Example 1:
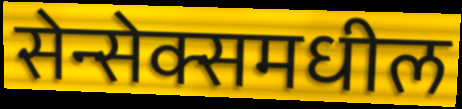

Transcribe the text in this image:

सेन्सेक्समधील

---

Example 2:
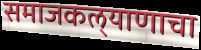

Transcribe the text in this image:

समाजकल्याणाचा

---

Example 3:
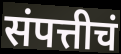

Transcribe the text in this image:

संपत्तीचं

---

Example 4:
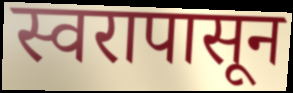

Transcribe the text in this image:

स्वरापासून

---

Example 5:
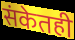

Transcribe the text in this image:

संकेतही